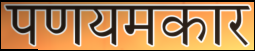
पणयमकार